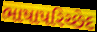
ભાષાપરિચ્છેદ